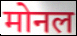
मोनल